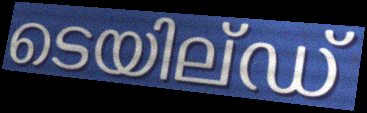
ടെയില്ഡ്